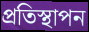
প্রতিস্থাপন